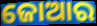
ଜୋଆର